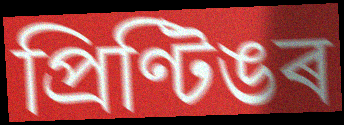
প্ৰিণ্টিঙৰ